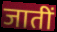
जातीं